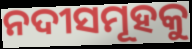
ନଦୀସମୂହକୁ